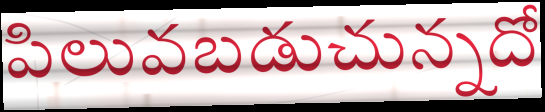
పిలువబడుచున్నదో